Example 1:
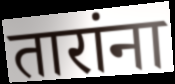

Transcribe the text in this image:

तारांना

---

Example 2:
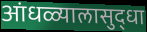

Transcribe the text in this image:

आंधळ्यालासुद्धा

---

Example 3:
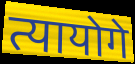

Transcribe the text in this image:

त्यायोगे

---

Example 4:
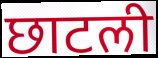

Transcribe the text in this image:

छाटली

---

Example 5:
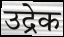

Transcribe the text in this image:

उद्रेक